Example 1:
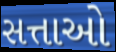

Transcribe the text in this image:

સત્તાઓ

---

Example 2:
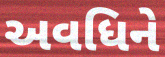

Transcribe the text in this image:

અવધિને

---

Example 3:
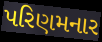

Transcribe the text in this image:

પરિણમનાર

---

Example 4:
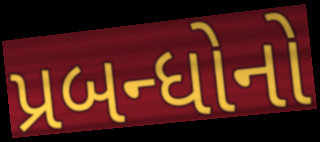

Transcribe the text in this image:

પ્રબન્ધોનો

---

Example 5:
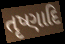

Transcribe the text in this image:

તૃષ્ણાદિ